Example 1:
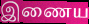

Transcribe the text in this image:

இணைய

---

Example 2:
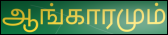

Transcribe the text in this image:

ஆங்காரமும்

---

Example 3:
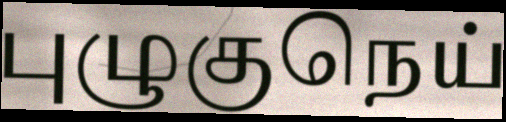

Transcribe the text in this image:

புழுகுநெய்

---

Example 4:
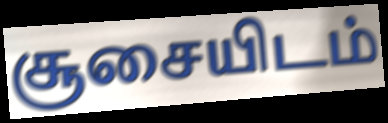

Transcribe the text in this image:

சூசையிடம்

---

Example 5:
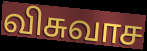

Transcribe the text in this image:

விசுவாச